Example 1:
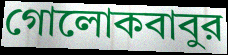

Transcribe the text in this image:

গোলোকবাবুর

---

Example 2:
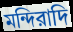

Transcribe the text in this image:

মন্দিরাদি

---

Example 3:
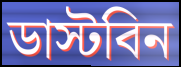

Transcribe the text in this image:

ডাস্টবিন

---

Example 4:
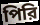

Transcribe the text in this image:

পিরি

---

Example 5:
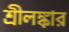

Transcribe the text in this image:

শ্রীলঙ্কার